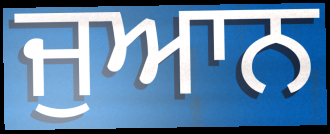
ਜੁਆਨ